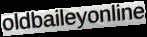
oldbaileyonline